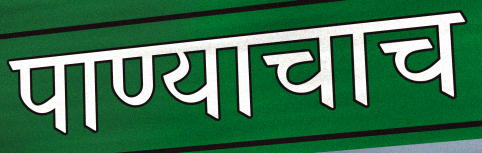
पाण्याचाच